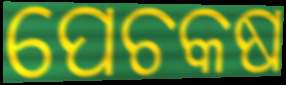
ପେଚକଷ